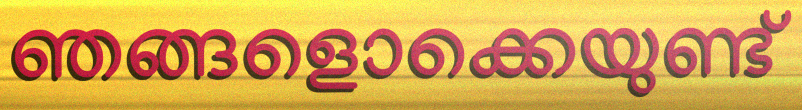
ഞങ്ങളൊക്കെയുണ്ട്